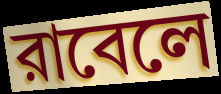
রাবেলে